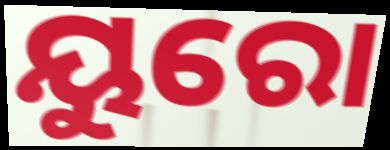
ୟୁରୋ